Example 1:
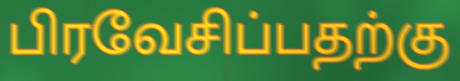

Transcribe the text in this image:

பிரவேசிப்பதற்கு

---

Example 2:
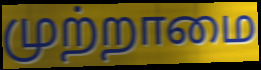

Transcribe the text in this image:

முற்றாமை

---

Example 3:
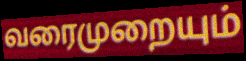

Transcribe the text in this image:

வரைமுறையும்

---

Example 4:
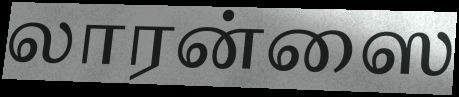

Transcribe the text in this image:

லாரன்ஸை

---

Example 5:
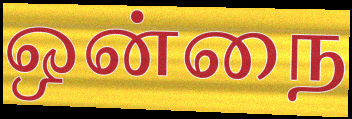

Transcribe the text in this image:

ஒன்நை